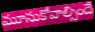
మూసుకోవాల్సిందే